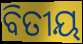
ବିତୀୟ